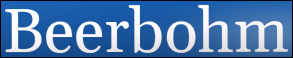
Beerbohm